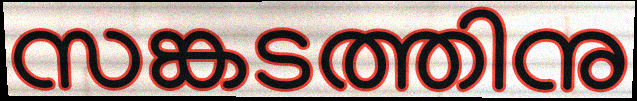
സങ്കടത്തിനു